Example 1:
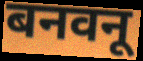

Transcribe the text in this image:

बनवनू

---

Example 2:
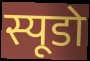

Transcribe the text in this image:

स्यूडो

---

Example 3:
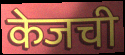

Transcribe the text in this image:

केजची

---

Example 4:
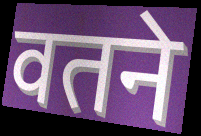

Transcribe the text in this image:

वतने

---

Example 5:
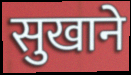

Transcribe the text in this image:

सुखाने